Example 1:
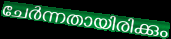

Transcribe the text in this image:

ചേർന്നതായിരിക്കും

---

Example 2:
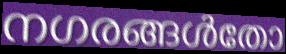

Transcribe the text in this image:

നഗരങ്ങൾതോ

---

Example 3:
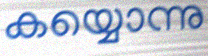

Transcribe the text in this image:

കയ്യൊന്നു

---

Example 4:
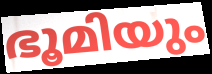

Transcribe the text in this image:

ഭൂമിയും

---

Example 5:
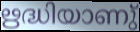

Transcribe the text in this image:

ഋദ്ധിയാണു്